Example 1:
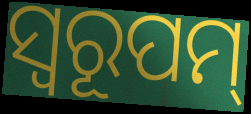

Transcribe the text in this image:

ସ୍ୱରୂପମ୍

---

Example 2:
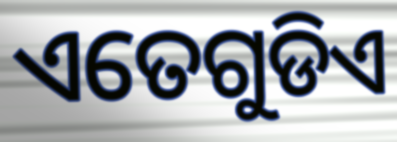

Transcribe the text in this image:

ଏତେଗୁଡିଏ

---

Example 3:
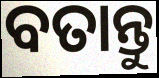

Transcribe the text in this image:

ବତାନ୍ତୁ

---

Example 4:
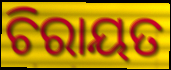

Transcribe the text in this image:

ଚିରାୟତ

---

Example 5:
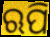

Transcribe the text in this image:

ଋପି